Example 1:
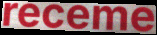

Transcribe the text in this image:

receme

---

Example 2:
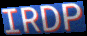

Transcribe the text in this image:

IRDP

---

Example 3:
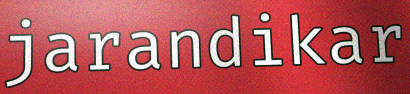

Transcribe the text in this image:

jarandikar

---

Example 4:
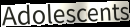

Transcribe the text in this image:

Adolescents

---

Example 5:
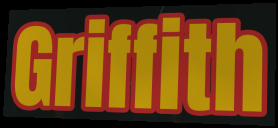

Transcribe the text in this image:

Griffith